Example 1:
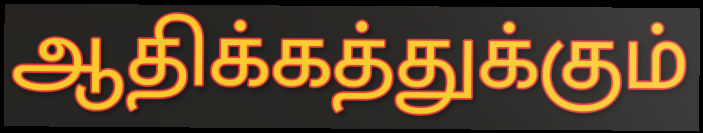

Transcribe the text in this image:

ஆதிக்கத்துக்கும்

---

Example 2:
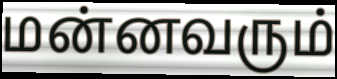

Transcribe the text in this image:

மன்னவரும்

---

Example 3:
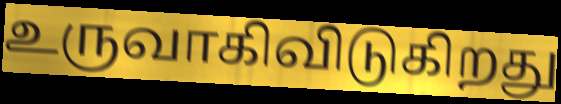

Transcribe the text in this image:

உருவாகிவிடுகிறது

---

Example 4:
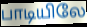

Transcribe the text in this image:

பாடியிலே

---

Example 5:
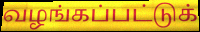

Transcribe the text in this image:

வழங்கப்பட்டுக்